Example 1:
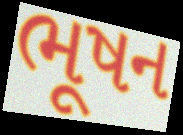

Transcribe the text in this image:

ભૂષન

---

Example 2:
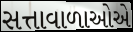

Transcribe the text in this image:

સત્તાવાળાઓએ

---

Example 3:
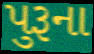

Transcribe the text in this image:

પુરૂના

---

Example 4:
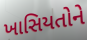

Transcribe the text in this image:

ખાસિયતોને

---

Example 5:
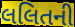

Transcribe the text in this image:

લલિતની